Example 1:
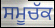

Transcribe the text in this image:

ਸਮੂਚੱਕ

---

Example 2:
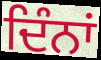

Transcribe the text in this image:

ਦਿੰਨਾਂ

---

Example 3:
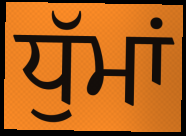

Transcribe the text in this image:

ਧੁੱਮਾਂ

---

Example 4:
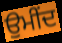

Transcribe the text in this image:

ਉਮੀਂਦ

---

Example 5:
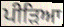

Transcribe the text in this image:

ਪੀੜਿਆ